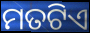
ମତଟିଏ